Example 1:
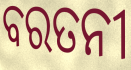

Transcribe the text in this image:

ବରତନୀ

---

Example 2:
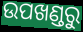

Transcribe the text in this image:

ଉପଖଣ୍ଡରୁ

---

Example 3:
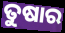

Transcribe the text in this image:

ତୁଷାର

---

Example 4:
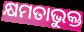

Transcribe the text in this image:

କ୍ଷମତାଭୁକ୍ତ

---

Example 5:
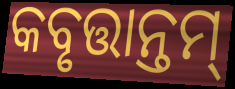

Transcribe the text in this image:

କବୃତ୍ତାନ୍ତମ୍